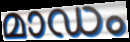
മാഡം